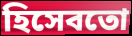
হিসেবতো